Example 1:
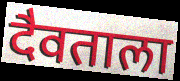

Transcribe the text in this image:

दैवताला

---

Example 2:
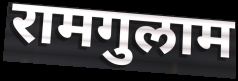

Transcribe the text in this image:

रामगुलाम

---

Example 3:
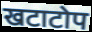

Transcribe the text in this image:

खटाटोप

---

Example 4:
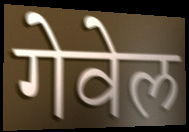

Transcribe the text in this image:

गेवेल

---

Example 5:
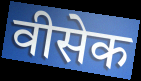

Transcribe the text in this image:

वीसेक